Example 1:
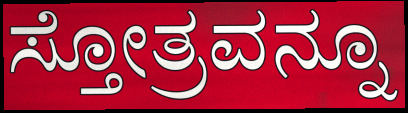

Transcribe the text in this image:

ಸ್ತೋತ್ರವನ್ನೂ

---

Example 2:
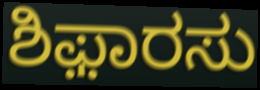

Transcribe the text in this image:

ಶಿಫ಼ಾರಸು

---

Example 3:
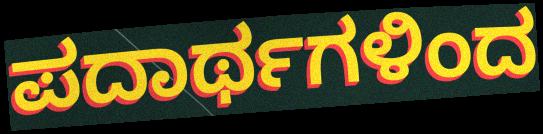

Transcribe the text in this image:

ಪದಾರ್ಥಗಳಿಂದ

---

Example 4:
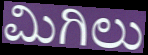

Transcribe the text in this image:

ಮಿಗಿಲು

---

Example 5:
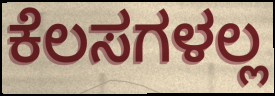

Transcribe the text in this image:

ಕೆಲಸಗಳಲ್ಲ